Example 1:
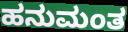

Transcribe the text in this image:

ಹನುಮಂತ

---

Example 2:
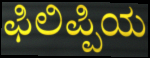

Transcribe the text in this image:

ಫಿಲಿಪ್ಪಿಯ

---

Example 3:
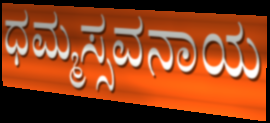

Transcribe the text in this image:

ಧಮ್ಮಸ್ಸವನಾಯ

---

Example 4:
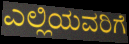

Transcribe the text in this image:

ಎಲ್ಲಿಯವರಿಗೆ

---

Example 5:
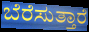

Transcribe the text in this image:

ಬೆರೆಸುತ್ತಾರೆ